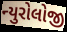
ન્યુરોલોજી